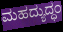
ಮಹದ್ಯುದ್ಧಂ